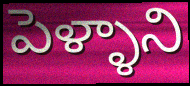
పెళ్ళాని